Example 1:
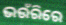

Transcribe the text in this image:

ଭଉଁରିରେ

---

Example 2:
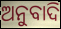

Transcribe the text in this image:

ଅନୁବାଦି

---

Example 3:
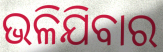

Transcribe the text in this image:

ଭଳିଯିବାର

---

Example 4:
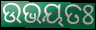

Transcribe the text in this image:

ଉଭୟତଃ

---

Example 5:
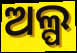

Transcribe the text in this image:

ଅଲ୍ପ